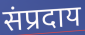
संप्रदाय